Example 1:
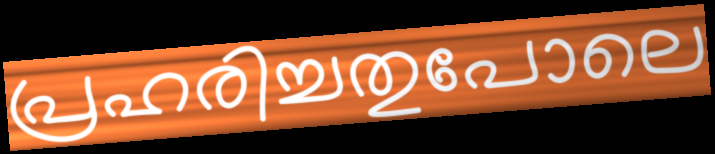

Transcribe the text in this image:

പ്രഹരിച്ചതുപോലെ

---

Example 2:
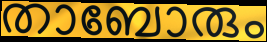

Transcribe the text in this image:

താബോരും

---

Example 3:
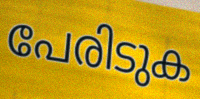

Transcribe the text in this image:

പേരിടുക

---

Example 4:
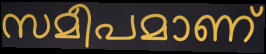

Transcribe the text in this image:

സമീപമാണ്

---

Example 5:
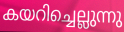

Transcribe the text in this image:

കയറിച്ചെല്ലുന്നു